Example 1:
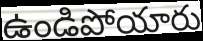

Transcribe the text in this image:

ఉండిపోయారు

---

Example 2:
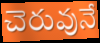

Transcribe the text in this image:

చెరువునే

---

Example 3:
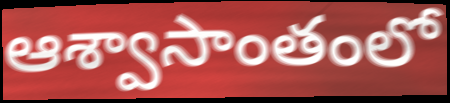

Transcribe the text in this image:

ఆశ్వాసాంతంలో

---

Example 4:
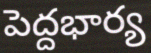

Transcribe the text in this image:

పెద్దభార్య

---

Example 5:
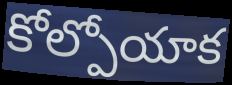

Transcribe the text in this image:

కోల్పోయాక